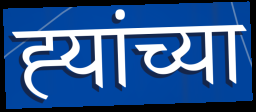
ह्‍यांच्या